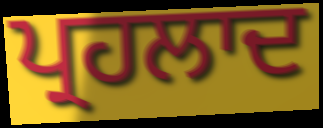
ਪ੍ਰਹਲਾਦ